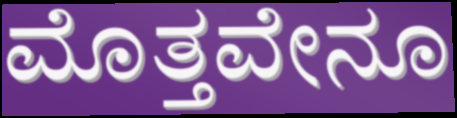
ಮೊತ್ತವೇನೂ